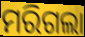
ମରିଗଲା